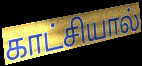
காட்சியால்